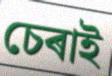
চেৰাই